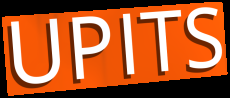
UPITS